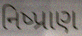
નિષ્પ્રાણ